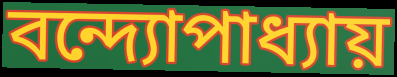
বন্দ্যোপাধ্যায়